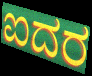
ಐದರ